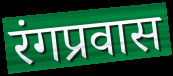
रंगप्रवास